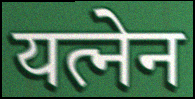
यत्‍नेन